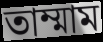
তাম্মাম